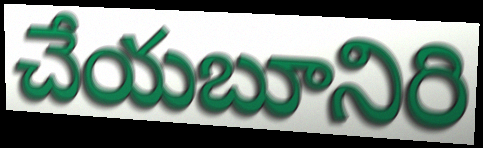
చేయబూనిరి